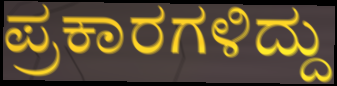
ಪ್ರಕಾರಗಳಿದ್ದು